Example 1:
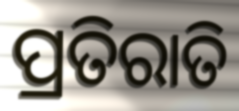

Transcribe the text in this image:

ପ୍ରତିରାତି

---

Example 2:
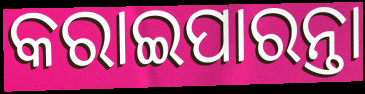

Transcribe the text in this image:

କରାଇପାରନ୍ତା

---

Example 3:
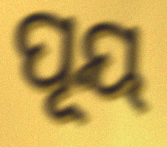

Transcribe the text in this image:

ପୂୟ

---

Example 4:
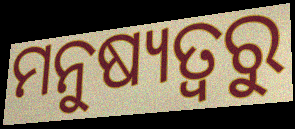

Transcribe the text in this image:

ମନୁଷ୍ୟତ୍ୱରୁ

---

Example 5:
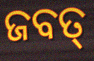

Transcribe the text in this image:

ଜବତ୍